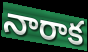
నారాక